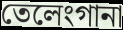
তেলেংগানা